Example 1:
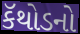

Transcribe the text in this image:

કૅથોડનો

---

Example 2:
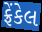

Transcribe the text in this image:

ફ્રેંકેલ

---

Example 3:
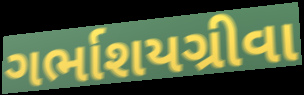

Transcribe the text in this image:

ગર્ભાશયગ્રીવા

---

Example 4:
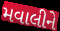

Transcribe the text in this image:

મવાલીને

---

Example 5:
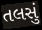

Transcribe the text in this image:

તલસું